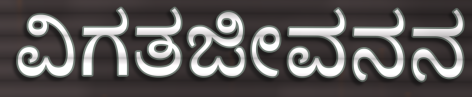
ವಿಗತಜೀವನನ